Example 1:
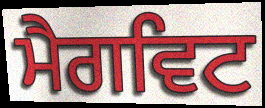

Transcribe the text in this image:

ਮੈਗਵਿਟ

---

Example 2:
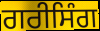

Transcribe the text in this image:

ਗਰੀਸਿੰਗ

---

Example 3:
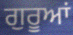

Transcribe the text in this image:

ਗੁਰੂਆਂ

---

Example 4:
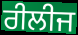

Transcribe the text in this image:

ਰੀਲੀਜ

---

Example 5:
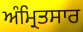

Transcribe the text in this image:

ਅੰਮ੍ਰਿਤਸਾਰ